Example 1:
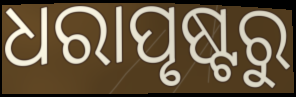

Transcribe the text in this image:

ଧରାପୃଷ୍ଟରୁ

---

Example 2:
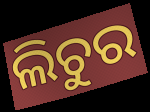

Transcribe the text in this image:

ଲିଚୁର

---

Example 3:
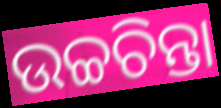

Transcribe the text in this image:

ଉଚ୍ଚଚିନ୍ତା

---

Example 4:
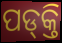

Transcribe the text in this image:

ପଡ୍‌କ୍ତି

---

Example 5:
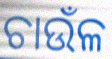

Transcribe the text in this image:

ଚାଉଁଳ